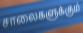
சாலைகளுக்கும்